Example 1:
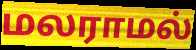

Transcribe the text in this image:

மலராமல்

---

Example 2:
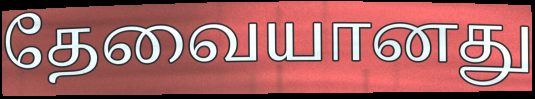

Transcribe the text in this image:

தேவையானது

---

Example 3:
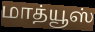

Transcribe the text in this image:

மாத்யூஸ்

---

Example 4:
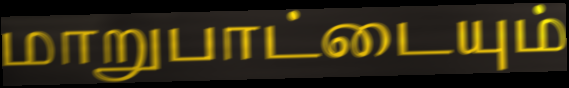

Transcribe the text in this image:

மாறுபாட்டையும்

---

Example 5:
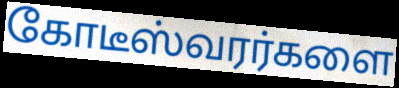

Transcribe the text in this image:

கோடீஸ்வரர்களை